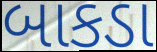
બાકડા